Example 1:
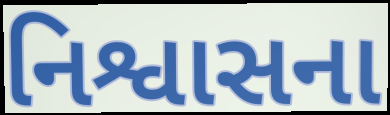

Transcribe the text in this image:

નિશ્વાસના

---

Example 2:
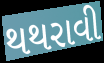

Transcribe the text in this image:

થથરાવી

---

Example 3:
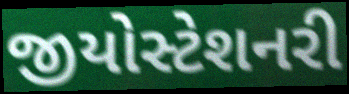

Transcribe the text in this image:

જીયોસ્ટેશનરી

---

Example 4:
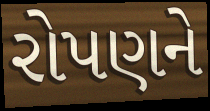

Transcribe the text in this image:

રોપણને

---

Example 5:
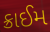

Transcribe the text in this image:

ક્રાઈમ